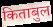
किताबुल